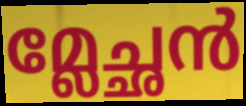
മ്ലേച്ഛൻ